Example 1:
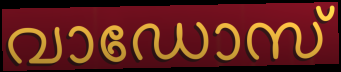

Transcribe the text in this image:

വാഡോസ്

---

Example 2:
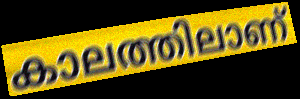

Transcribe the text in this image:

കാലത്തിലാണ്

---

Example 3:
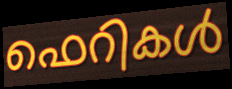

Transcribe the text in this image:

ഫെറികൾ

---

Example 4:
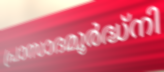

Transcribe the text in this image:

പ്രാസാദമൂർദ്ധ്നി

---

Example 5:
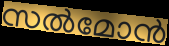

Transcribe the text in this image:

സൽമോൻ